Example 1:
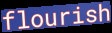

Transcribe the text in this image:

flourish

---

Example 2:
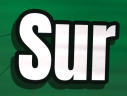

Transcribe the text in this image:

Sur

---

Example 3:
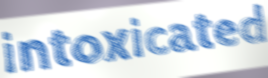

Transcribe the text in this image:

intoxicated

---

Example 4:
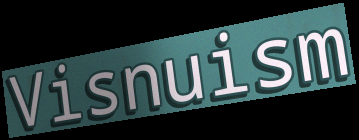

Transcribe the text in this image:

Visnuism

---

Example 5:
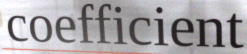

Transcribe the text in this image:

coefficient